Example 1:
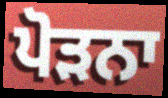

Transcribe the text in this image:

ਪੋੜਨਾ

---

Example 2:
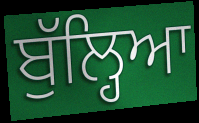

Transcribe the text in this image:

ਬੁੱਲ੍ਹਿਆ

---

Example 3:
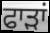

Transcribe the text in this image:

ਫਾੜਾਂ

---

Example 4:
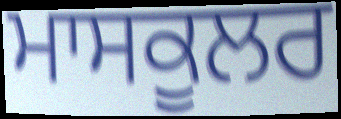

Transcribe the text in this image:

ਮਾਸਕੂਲਰ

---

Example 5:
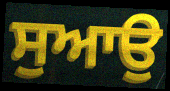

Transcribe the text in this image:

ਸੁਆਉ